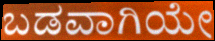
ಬಡವಾಗಿಯೇ